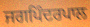
ਜਗਪਿੰਦਰਪਾਲ